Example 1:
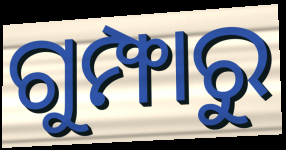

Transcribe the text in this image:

ଗୁମ୍ଫାରୁ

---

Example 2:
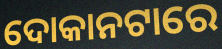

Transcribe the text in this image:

ଦୋକାନଟାରେ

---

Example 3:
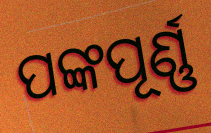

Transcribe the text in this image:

ପଙ୍କପୂର୍ଣ୍ଣ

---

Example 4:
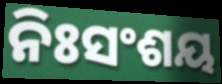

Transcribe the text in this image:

ନିଃସଂଶୟ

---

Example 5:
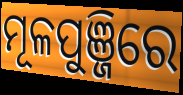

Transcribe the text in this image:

ମୂଳପୁଞ୍ଜିରେ